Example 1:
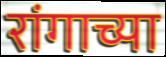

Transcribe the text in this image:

रांगाच्या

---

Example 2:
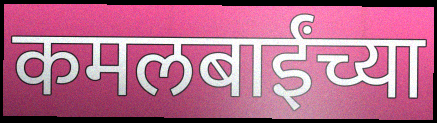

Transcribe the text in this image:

कमलबाईंच्या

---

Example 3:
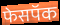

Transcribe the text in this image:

फेसपॅक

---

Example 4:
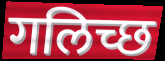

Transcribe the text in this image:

गलिच्छ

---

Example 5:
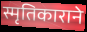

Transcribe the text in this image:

स्मृतिकाराने